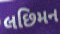
લછિમન